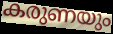
കരുണയും